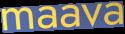
maava